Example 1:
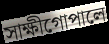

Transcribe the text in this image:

সাক্ষীগোপালে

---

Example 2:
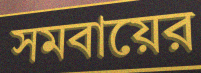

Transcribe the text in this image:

সমবায়ের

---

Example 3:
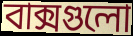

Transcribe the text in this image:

বাক্সগুলো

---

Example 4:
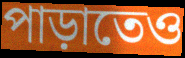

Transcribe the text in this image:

পাড়াতেও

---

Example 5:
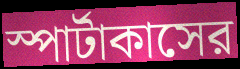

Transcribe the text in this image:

স্পার্টাকাসের